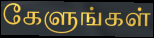
கேளுங்கள்